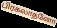
பிரகலாதனோ